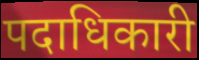
पदाधिकारी